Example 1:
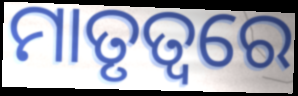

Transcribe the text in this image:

ମାତୃତ୍ୱରେ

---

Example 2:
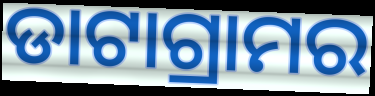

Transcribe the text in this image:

ଡାଟାଗ୍ରାମର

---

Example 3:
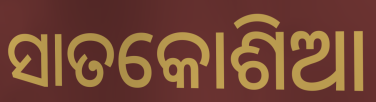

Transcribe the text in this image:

ସାତକୋଶିଆ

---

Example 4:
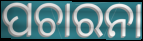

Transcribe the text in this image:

ପଚାରନା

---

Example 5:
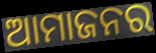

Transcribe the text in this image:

ଆମାଜନର